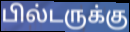
பில்டருக்கு